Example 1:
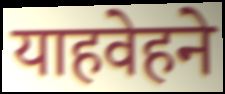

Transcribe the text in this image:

याहवेहने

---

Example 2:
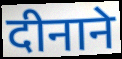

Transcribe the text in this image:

दीनाने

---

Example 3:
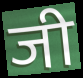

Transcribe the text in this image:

जी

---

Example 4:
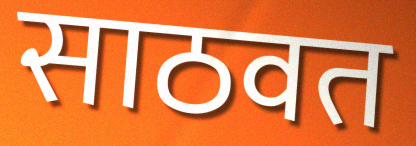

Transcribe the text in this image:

साठवत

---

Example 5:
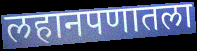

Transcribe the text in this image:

लहानपणातला